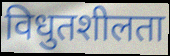
विधुतशीलता